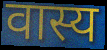
वास्य